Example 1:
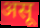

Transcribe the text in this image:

असू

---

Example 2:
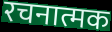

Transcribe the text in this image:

रचनात्मक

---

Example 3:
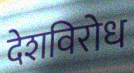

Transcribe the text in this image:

देशविरोध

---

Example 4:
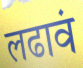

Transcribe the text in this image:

लढावं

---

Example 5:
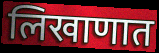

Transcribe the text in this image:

लिखाणात